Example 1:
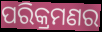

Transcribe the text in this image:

ପରିକ୍ରମଣର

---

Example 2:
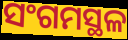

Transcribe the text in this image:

ସଂଗମସ୍ଥଳ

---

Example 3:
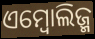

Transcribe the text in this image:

ଏମ୍ବୋଲିଜ୍ମ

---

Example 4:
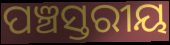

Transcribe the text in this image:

ପଞ୍ଚସ୍ତରୀୟ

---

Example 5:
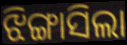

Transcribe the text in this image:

ଝିଙ୍ଗାସିଲା